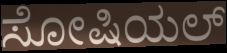
ಸೋಷಿಯಲ್